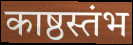
काष्ठस्तंभ